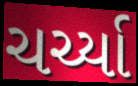
ચર્ચ્યા